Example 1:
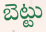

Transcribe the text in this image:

బెట్టు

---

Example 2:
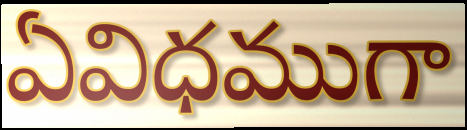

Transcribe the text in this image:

ఏవిధముగా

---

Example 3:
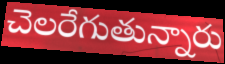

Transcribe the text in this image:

చెలరేగుతున్నారు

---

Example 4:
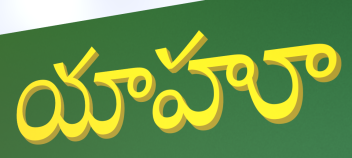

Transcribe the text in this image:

యాహూ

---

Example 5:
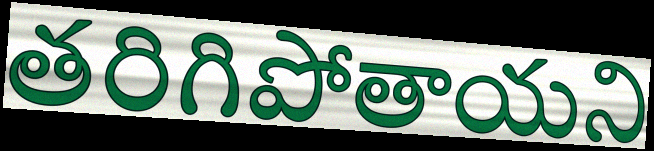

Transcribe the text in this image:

తరిగిపోతాయని